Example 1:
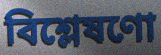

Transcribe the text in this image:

বিশ্লেষণো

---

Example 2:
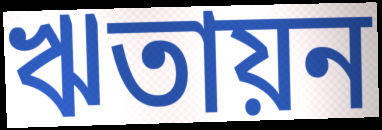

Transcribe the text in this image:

ঋতায়ন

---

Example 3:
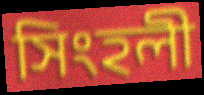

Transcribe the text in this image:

সিংহলী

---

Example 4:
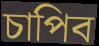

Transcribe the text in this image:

চাপিব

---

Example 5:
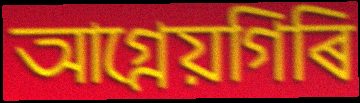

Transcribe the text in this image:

আগ্নেয়গিৰি